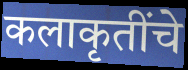
कलाकृतींचे